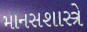
માનસશાસ્ત્રે